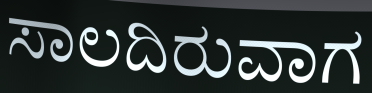
ಸಾಲದಿರುವಾಗ